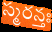
స్మరన్తః